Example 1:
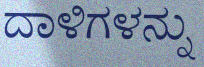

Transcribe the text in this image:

ದಾಳಿಗಳನ್ನು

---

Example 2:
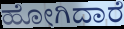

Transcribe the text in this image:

ಹೋಗಿದಾರೆ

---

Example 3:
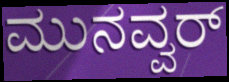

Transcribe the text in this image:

ಮುನವ್ವರ್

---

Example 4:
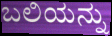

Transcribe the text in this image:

ಬಲಿಯನ್ನು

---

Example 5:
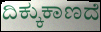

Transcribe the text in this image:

ದಿಕ್ಕುಕಾಣದೆ